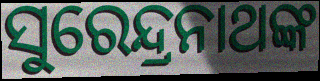
ସୁରେନ୍ଦ୍ରନାଥଙ୍କ